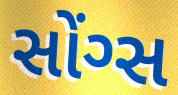
સોંગ્સ